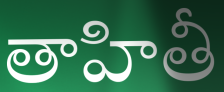
తాహితీ